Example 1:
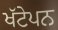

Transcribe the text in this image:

ਖੱਟੇਪਨ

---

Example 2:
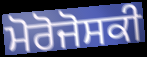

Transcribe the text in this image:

ਮੋਰੋਜੋਸਕੀ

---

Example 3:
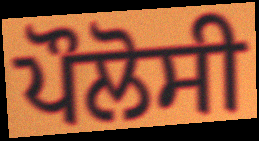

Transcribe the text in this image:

ਪੌਲੋਸੀ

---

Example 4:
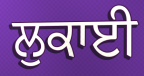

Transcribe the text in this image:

ਲੁਕਾਈ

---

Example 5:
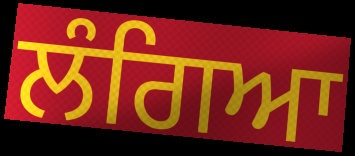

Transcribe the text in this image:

ਲੰਗਿਆ